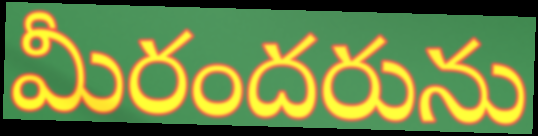
మీరందరును